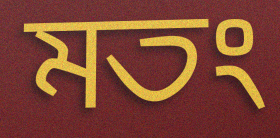
মতং